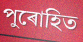
পুৰোহিত